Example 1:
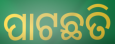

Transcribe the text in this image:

ପାଟଛତି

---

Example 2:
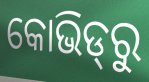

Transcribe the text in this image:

କୋଭିଡ୍‌ରୁ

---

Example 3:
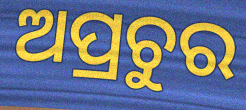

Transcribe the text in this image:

ଅପ୍ରଚୁର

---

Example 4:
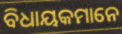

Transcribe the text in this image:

ବିଧାୟକମାନେ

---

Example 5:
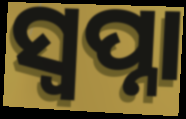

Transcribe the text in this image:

ସ୍ଵପ୍ନା